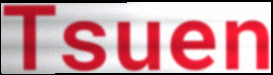
Tsuen